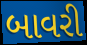
બાવરી